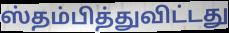
ஸ்தம்பித்துவிட்டது